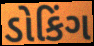
ડોકિંગ